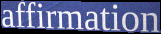
affirmation